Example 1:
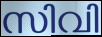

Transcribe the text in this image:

സിവി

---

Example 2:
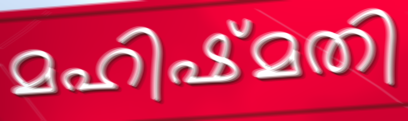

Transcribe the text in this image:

മഹിഷ്മതി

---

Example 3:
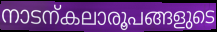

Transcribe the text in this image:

നാടന്കലാരൂപങ്ങളുടെ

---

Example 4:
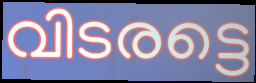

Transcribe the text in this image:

വിടരട്ടെ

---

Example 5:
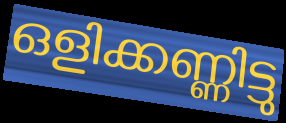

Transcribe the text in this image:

ഒളിക്കണ്ണിട്ടു